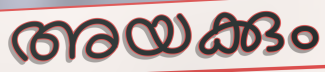
അയക്കും